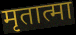
मृतात्मा